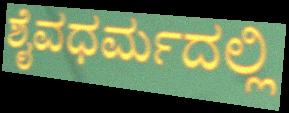
ಶೈವಧರ್ಮದಲ್ಲಿ